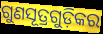
ଗୁଣସୂତ୍ରଗୁଡ଼ିକର